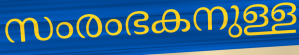
സംരംഭകനുള്ള